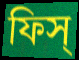
ফিস্